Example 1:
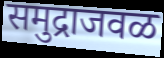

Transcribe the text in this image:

समुद्राजवळ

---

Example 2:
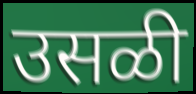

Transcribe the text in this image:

उसळी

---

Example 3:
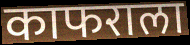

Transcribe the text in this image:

काफराला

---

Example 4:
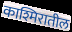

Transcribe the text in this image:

काश्मिरातील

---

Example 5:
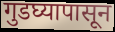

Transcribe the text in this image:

गुडघ्यापासून